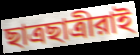
ছাত্রছাত্রীরাই